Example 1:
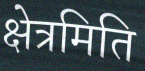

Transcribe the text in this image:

क्षेत्रमिति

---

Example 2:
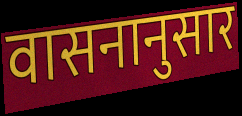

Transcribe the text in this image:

वासनानुसार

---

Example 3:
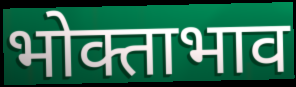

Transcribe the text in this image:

भोक्ताभाव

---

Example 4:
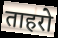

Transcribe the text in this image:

ताहरो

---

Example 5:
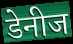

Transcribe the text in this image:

डेनीज